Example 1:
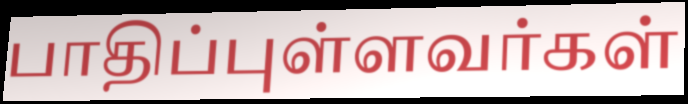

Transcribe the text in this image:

பாதிப்புள்ளவர்கள்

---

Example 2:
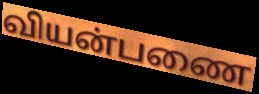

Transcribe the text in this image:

வியன்பணை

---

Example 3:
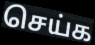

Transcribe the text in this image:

செய்க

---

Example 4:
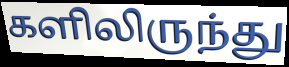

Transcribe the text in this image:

களிலிருந்து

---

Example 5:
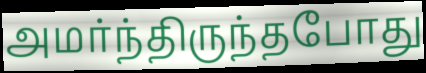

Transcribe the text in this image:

அமர்ந்திருந்தபோது